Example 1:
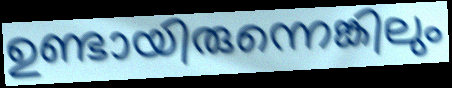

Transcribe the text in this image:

ഉണ്ടായിരുന്നെങ്കിലും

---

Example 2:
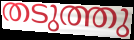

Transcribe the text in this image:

തടുത്തു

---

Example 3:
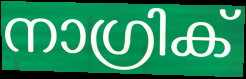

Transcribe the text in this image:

നാഗ്രിക്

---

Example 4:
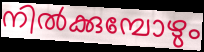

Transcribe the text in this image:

നിൽക്കുമ്പോഴും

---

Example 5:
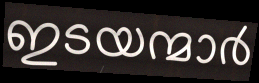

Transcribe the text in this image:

ഇടയന്മാർ